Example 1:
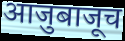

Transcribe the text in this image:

आजुबाजूच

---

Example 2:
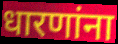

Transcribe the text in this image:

धारणांना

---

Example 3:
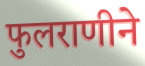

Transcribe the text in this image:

फुलराणीने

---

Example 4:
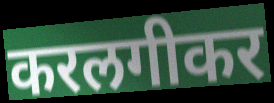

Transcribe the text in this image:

करलगीकर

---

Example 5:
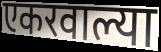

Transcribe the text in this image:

एकरवाल्या